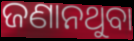
ଜଣାନଥୁବା